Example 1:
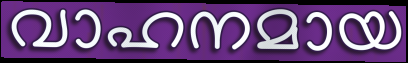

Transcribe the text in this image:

വാഹനമായ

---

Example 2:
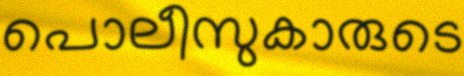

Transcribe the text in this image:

പൊലീസുകാരുടെ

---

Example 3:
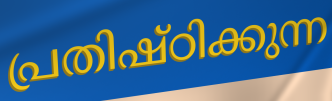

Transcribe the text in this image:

പ്രതിഷ്ഠിക്കുന്ന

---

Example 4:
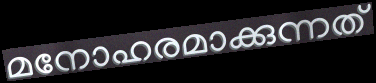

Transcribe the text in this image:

മനോഹരമാക്കുന്നത്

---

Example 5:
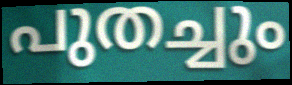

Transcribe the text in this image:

പുതച്ചും